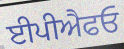
ਈਪੀਐਫਓ